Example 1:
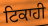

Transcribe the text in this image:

ਟਿਕਾਹੀ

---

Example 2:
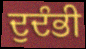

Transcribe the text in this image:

ਦੁਦੰਭੀ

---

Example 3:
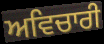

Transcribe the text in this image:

ਅਵਿਚਾਰੀ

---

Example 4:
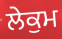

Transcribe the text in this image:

ਲੇਕੁਮ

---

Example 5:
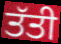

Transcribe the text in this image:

ਤੱਤੀ